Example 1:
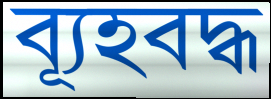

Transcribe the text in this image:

ব্যূহবদ্ধ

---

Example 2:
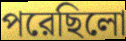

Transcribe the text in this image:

পরেছিলো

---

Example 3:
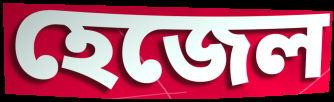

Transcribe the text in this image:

হেজেল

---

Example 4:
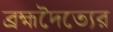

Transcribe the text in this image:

ব্রহ্মদৈত্যের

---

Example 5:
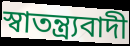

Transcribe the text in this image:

স্বাতন্ত্র্যবাদী